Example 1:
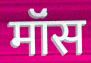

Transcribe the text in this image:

मॉंस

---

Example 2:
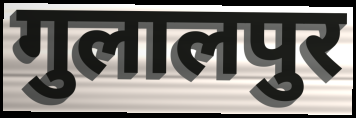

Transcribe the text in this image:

गुलालपुर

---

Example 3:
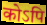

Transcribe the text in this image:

कोऽपि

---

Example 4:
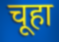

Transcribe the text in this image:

चूहा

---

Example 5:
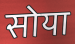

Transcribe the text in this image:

सोया